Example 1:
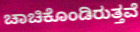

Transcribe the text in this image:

ಚಾಚಿಕೊಂಡಿರುತ್ತವೆ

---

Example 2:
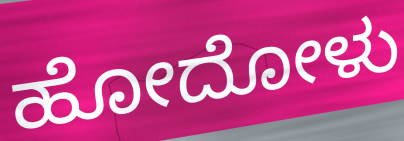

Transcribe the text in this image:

ಹೋದೋಳು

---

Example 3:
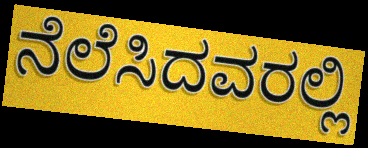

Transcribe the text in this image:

ನೆಲೆಸಿದವರಲ್ಲಿ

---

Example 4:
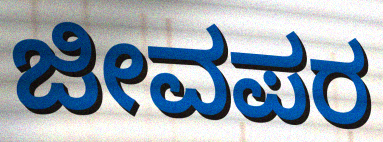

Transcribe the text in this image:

ಜೀವಪರ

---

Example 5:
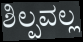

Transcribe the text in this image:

ಶಿಲ್ಪವಲ್ಲ